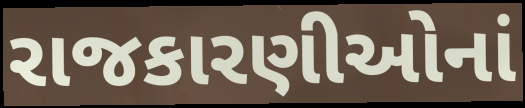
રાજકારણીઓનાં